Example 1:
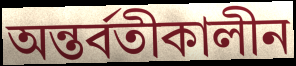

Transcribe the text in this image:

অন্তর্বতীকালীন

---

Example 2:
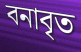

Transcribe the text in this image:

বনাবৃত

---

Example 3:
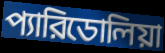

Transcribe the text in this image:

প্যারিডোলিয়া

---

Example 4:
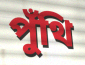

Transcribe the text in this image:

পুঁথি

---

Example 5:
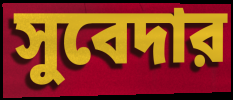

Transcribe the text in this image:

সুবেদার